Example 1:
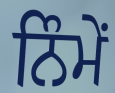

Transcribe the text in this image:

ਨਿੰਮੇਂ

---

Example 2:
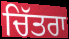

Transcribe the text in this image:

ਚਿੱਤਰਾ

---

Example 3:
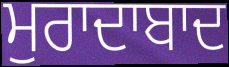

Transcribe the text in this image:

ਮੁਰਾਦਾਬਾਦ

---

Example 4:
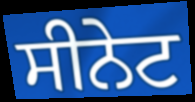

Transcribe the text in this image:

ਸੀਨੇਟ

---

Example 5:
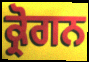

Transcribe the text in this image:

ਕ੍ਰੋਗਨ